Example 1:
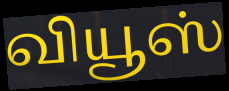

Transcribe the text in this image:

வியூஸ்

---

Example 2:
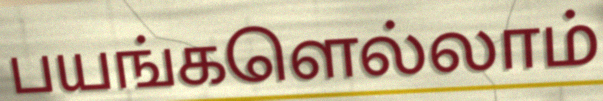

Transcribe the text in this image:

பயங்களெல்லாம்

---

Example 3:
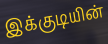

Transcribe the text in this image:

இக்குடியின்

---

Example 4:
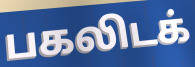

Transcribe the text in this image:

பகலிடக்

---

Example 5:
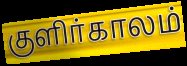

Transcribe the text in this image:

குளிர்காலம்